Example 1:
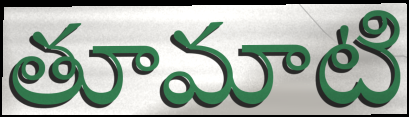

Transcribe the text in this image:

తూమాటి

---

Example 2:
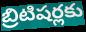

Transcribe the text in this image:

బ్రిటిషర్లకు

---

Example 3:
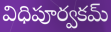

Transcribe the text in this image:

విధిపూర్వకమ్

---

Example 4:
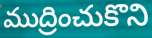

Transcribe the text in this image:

ముద్రించుకొని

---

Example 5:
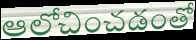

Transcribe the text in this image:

ఆలోచించడంతో